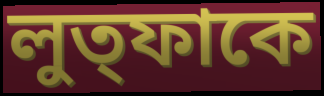
লুত্ফাকে